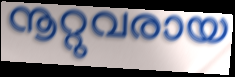
നൂറ്റുവരായ